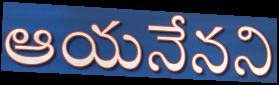
ఆయనేనని